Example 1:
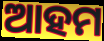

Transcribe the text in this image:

ଆହମ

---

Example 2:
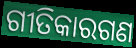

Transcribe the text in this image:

ଗୀତିକାରଗଣ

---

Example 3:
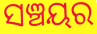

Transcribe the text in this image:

ସଞ୍ଚୟର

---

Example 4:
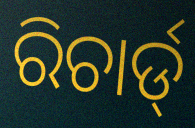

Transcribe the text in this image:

ରିଚାର୍ଡ୍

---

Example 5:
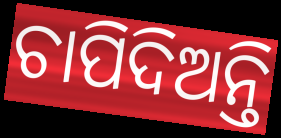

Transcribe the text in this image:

ଚାପିଦିଅନ୍ତି